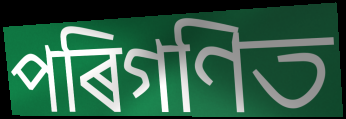
পৰিগণিত